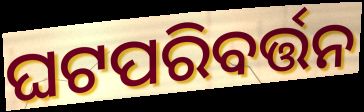
ଘଟପରିବର୍ତ୍ତନ